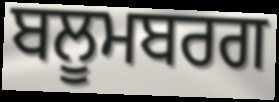
ਬਲੂਮਬਰਗ